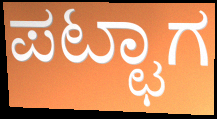
ಪಟ್ಟಾಗ